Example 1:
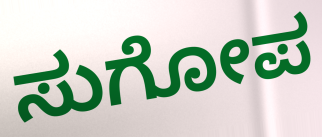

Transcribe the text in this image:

ಸುಗೋಪ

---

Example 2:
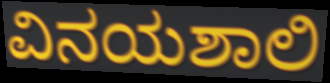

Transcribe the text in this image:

ವಿನಯಶಾಲಿ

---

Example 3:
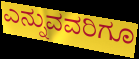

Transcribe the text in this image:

ಎನ್ನುವವರಿಗೂ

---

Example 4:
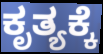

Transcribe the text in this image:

ಕೃತ್ಯಕ್ಕೆ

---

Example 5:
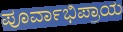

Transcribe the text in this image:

ಪೂರ್ವಾಭಿಪ್ರಾಯ